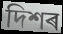
দিশৰ